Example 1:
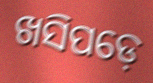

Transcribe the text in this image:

ଖସିପଡ଼େ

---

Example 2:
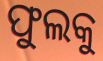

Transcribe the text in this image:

ଫୁଲକୁ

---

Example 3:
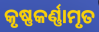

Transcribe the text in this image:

କୃଷ୍ଣକର୍ଣ୍ଣାମୃତ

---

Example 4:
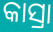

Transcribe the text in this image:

କାସ୍ରା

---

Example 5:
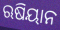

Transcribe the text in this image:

ଋଷିୟାନ